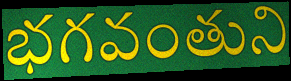
భగవంతుని